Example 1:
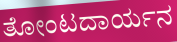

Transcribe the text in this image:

ತೋಂಟದಾರ್ಯನ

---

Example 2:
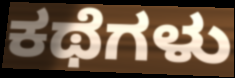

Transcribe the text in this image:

ಕಥೆಗಳು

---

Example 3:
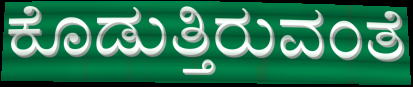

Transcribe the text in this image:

ಕೊಡುತ್ತಿರುವಂತೆ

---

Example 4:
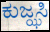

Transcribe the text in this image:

ಕುಜ್ಝಸಿ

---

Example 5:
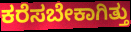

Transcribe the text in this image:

ಕರೆಸಬೇಕಾಗಿತ್ತು